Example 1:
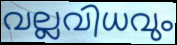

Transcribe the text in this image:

വല്ലവിധവും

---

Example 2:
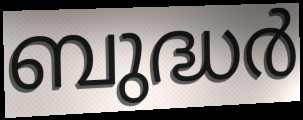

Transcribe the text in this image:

ബുദ്ധർ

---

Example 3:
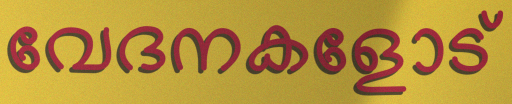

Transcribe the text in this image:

വേദനകളോട്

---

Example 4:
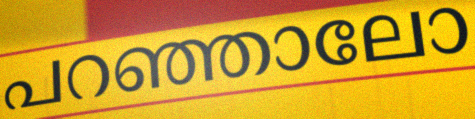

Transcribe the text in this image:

പറഞ്ഞാലോ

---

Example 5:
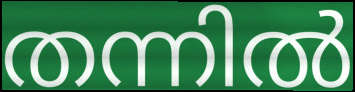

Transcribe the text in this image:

തന്നിൽ